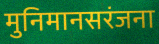
मुनिमानसरंजना